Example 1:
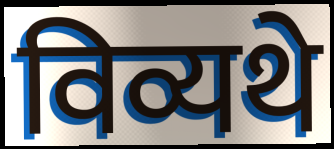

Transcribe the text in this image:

विव्यथे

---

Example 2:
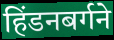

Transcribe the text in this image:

हिंडनबर्गने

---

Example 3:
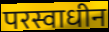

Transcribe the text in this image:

परस्वाधीन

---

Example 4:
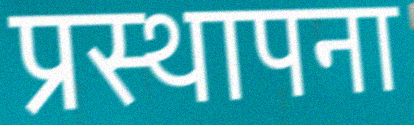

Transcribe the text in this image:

प्रस्थापना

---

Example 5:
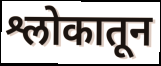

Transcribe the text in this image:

श्लोकातून